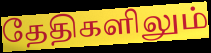
தேதிகளிலும்